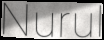
Nurul